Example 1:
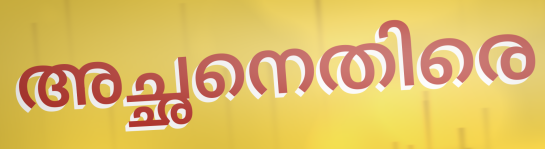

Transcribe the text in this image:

അച്ഛനെതിരെ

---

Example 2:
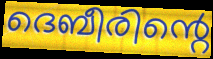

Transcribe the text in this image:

ദെബീരിന്റെ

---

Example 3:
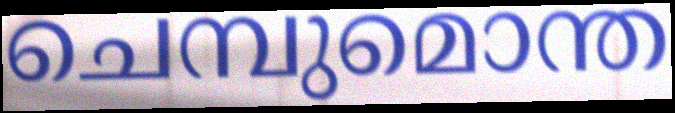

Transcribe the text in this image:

ചെമ്പുമൊന്ത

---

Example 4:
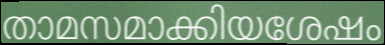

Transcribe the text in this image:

താമസമാക്കിയശേഷം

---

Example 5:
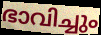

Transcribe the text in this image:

ഭാവിച്ചും